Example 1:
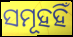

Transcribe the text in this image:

ସମୂହହିଁ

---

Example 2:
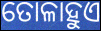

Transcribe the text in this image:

ତୋଳାହୁଏ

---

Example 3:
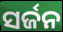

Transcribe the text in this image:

ସର୍ଜନ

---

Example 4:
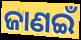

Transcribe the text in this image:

ଜାଣଇଁ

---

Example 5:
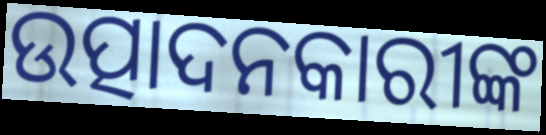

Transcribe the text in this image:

ଉତ୍ପାଦନକାରୀଙ୍କ